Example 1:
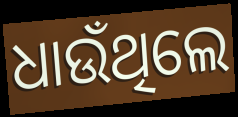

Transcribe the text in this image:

ଧାଉଁଥିଲେ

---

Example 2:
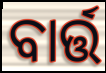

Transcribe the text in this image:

ବାର୍ତ୍ତ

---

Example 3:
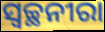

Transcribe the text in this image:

ସ୍ବଚ୍ଛନୀରା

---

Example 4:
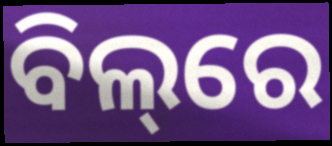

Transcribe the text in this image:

ବିଲ୍‌ରେ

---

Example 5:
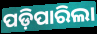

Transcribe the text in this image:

ପଡ଼ିପାରିଲା